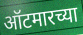
ऑटमारच्या